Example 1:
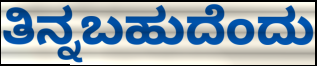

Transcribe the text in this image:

ತಿನ್ನಬಹುದೆಂದು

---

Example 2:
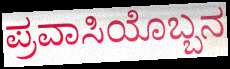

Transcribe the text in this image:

ಪ್ರವಾಸಿಯೊಬ್ಬನ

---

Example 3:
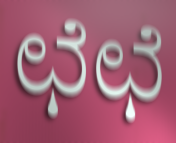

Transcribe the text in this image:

ಛೆಛೆ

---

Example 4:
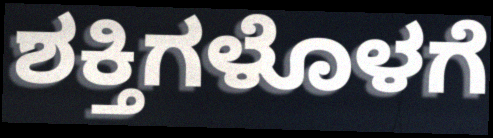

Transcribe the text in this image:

ಶಕ್ತಿಗಳೊಳಗೆ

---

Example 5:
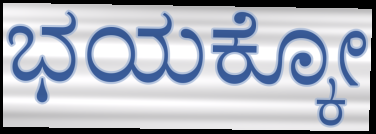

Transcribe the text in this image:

ಭಯಕ್ಕೋ